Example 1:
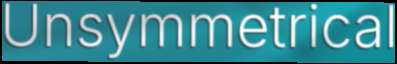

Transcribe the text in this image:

Unsymmetrical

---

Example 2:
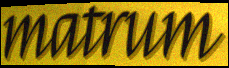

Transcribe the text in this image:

matrum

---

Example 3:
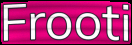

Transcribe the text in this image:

Frooti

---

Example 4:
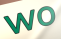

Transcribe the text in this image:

wo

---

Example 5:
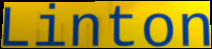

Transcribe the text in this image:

Linton